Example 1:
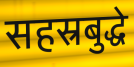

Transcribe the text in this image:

सहस्रबुद्धे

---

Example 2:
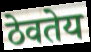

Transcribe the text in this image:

ठेवतेय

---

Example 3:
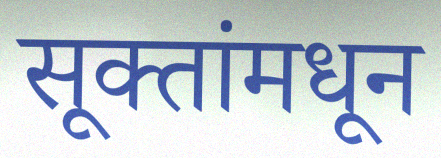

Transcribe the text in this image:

सूक्तांमधून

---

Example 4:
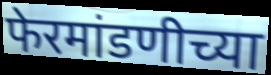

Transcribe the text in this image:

फेरमांडणीच्या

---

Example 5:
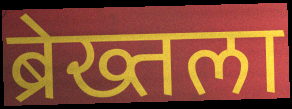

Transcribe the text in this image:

ब्रेख्तला